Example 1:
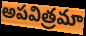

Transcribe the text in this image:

అపవిత్రమా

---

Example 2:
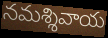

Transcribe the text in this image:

నమశ్శివాయ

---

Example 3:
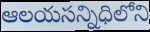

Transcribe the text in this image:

ఆలయసన్నిధిలోని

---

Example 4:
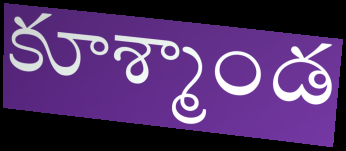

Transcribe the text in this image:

కూశ్మాండ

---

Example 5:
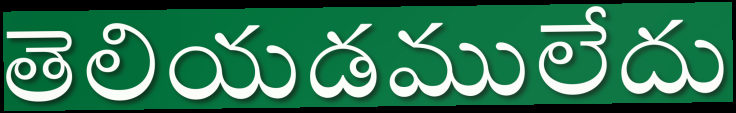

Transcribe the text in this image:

తెలియడములేదు